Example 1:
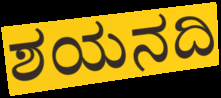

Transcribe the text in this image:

ಶಯನದಿ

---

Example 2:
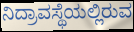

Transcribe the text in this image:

ನಿದ್ರಾವಸ್ಥೆಯಲ್ಲಿರುವ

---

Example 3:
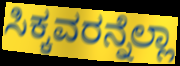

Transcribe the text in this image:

ಸಿಕ್ಕವರನ್ನೆಲ್ಲಾ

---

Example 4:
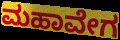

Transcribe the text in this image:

ಮಹಾವೇಗ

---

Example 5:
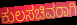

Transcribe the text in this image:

ಕುಲಸಚಿವರಾಗಿ